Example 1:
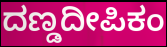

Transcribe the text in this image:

ದಣ್ಡದೀಪಿಕಂ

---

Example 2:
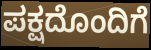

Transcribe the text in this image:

ಪಕ್ಷದೊಂದಿಗೆ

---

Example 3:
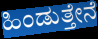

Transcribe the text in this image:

ಹಿಂಡುತ್ತೇನೆ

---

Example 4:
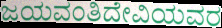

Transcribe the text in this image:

ಜಯವಂತಿದೇವಿಯವರ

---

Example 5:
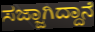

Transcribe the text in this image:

ಸಜ್ಜಾಗಿದ್ದಾನೆ